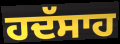
ਹਦੱਸਾਹ